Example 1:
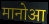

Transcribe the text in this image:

मानोआ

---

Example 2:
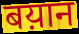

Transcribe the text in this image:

बय़ान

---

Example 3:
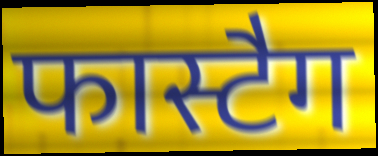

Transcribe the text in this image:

फास्‍टैग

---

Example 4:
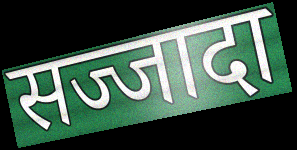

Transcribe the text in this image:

सज्जादा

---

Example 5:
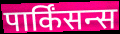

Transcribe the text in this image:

पार्किंसन्स